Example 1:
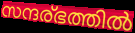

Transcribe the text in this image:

സന്ദര്ഭത്തിൽ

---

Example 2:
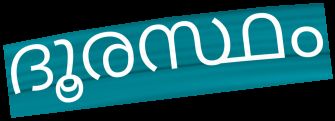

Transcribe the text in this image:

ദൂരസ്ഥം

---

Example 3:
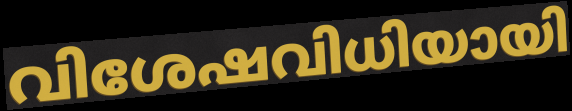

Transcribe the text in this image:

വിശേഷവിധിയായി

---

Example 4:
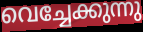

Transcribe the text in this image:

വെച്ചേക്കുന്നു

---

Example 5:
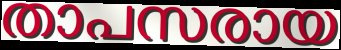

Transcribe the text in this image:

താപസരായ